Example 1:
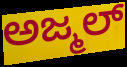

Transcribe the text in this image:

ಅಜ್ಮಲ್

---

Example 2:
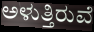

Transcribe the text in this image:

ಅಳುತ್ತಿರುವೆ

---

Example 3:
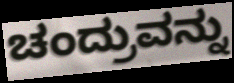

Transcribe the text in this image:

ಚಂದ್ರುವನ್ನು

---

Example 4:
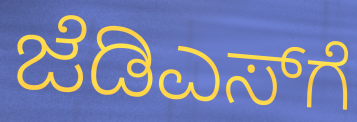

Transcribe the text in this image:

ಜೆಡಿಎಸ್‌ಗೆ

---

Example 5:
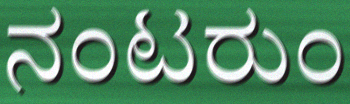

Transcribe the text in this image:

ನಂಟರುಂ